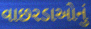
વાછરડાઓનું